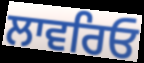
ਲਾਵਰਿਓ